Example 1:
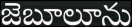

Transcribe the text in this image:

జెబూలూను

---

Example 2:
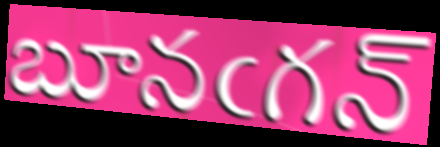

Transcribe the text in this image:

బూనఁగన్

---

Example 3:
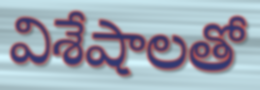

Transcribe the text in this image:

విశేషాలతో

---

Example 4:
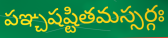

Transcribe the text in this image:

పఞ్చషష్టితమస్సర్గః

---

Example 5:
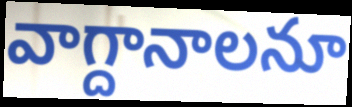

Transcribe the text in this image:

వాగ్దానాలనూ